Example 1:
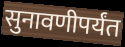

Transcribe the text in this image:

सुनावणीपर्यंत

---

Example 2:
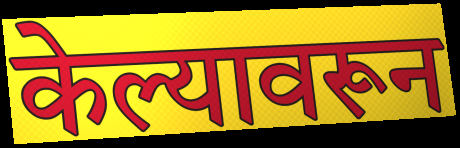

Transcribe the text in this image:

केल्यावरून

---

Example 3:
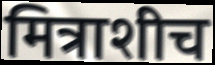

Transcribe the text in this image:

मित्राशीच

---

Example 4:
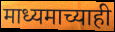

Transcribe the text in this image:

माध्यमाच्याही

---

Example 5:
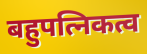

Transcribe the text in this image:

बहुपत्निकत्व